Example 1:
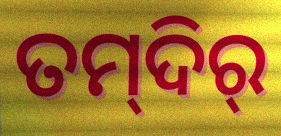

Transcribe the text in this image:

ତମ୍‍ଦିର୍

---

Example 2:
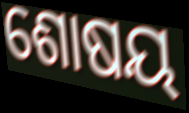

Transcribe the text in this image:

ଶୋଷୟ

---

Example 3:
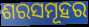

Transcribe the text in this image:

ଶରସମୂହର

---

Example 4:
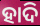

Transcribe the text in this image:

ହାଦି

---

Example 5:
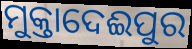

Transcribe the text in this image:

ମୁକ୍ତାଦେଈପୁର